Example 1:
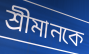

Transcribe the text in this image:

শ্রীমানকে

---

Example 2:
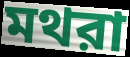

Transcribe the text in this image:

মথরা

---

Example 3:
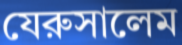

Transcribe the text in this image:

যেরুসালেম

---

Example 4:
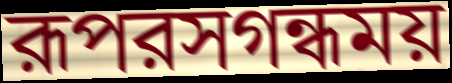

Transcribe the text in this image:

রূপরসগন্ধময়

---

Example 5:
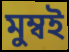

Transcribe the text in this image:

মুম্বই